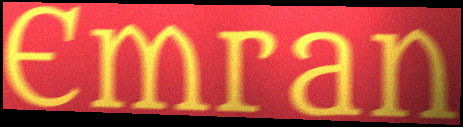
Emran